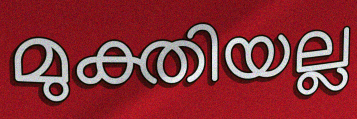
മുക്തിയല്ല